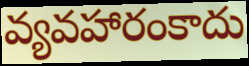
వ్యవహారంకాదు